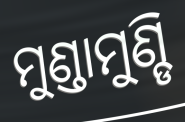
ମୁଣ୍ଡାମୁଣ୍ଡି